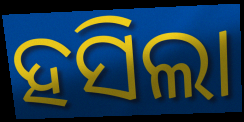
ହସିଲା